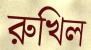
রুখিল